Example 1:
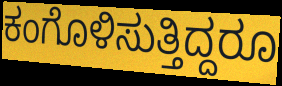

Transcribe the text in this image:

ಕಂಗೊಳಿಸುತ್ತಿದ್ದರೂ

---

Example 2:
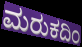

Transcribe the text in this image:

ಮರುಕದಿಂ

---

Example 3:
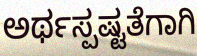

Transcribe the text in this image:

ಅರ್ಥಸ್ಪಷ್ಟತೆಗಾಗಿ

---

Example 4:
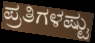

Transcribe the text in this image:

ಪ್ರತಿಗಳಷ್ಟು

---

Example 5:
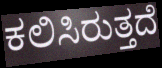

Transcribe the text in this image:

ಕಲಿಸಿರುತ್ತದೆ